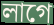
লাগে